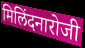
मिलिंदनारोजी